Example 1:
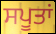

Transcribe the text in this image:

ਸਪੂਤਾਂ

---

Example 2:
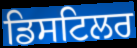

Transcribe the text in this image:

ਡਿਸਟਿਲਰ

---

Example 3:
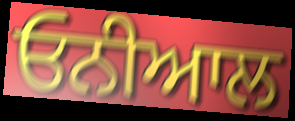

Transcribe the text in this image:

ਓਨੀਆਲ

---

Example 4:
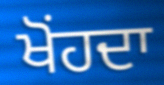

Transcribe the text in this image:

ਖੋਂਹਦਾ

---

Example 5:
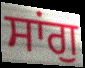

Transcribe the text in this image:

ਸਾਂਗੁ